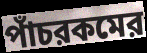
পাঁচরকমের